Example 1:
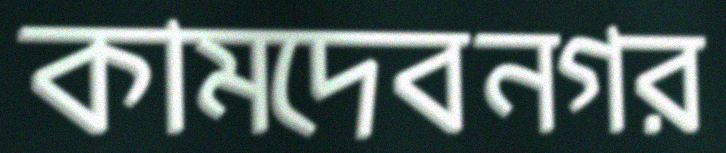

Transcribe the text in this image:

কামদেবনগর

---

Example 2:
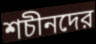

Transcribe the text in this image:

শচীনদের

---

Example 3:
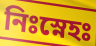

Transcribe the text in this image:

নিঃস্নেহঃ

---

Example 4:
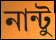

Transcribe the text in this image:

নান্টু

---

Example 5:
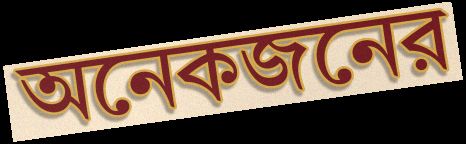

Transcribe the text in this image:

অনেকজনের